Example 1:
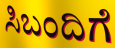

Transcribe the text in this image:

ಸಿಬಂದಿಗೆ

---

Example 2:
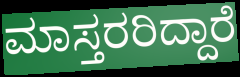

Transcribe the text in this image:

ಮಾಸ್ತರರಿದ್ದಾರೆ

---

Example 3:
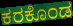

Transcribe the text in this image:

ಕರಕೊಂಡ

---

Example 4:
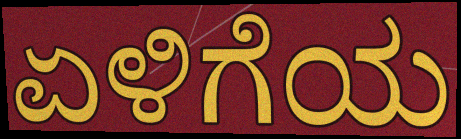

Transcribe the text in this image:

ಏಳಿಗೆಯ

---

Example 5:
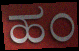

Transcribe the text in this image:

ಹಂ